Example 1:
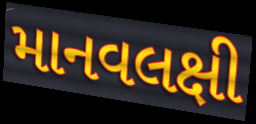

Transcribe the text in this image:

માનવલક્ષી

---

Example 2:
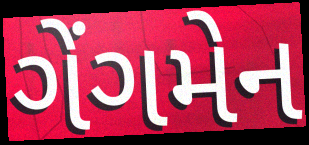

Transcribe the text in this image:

ગેંગમેન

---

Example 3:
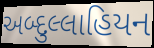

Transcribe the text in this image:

અબ્દુલ્લાહિયન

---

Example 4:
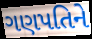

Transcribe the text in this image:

ગણપતિને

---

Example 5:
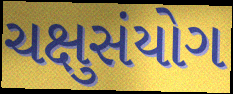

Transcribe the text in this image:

ચક્ષુસંયોગ